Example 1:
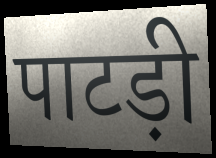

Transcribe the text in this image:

पाटड़ी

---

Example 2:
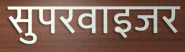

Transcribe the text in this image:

सुपरवाइजर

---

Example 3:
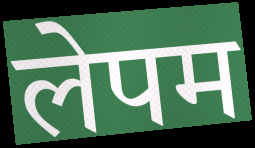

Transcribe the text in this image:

लेपम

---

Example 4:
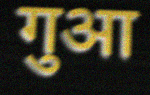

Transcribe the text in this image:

गुआ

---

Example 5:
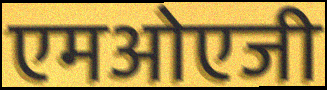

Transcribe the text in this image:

एमओएजी